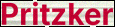
Pritzker